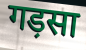
गड़सा